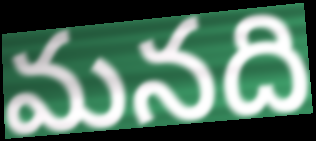
మనది